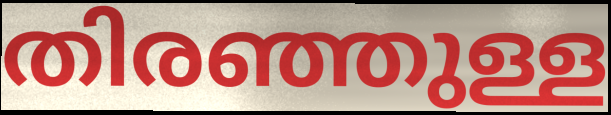
തിരഞ്ഞുള്ള